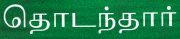
தொடந்தார்